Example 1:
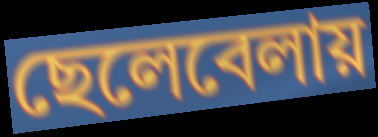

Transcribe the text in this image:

ছেলেবেলায়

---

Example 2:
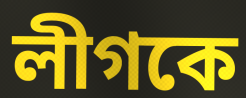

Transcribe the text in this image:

লীগকে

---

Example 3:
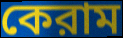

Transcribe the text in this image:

কেরাম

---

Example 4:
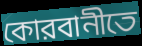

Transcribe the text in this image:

কোরবানীতে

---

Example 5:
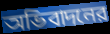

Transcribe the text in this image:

অভিবাদনের